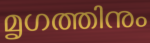
മൃഗത്തിനും